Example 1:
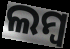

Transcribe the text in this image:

ଲମ୍ବ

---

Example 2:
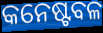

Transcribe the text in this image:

କନେଷ୍ଟବଳ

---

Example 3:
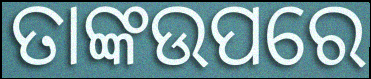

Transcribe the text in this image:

ତାଙ୍କଉପରେ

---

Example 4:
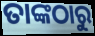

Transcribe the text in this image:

ତାଙ୍କଠାରୁ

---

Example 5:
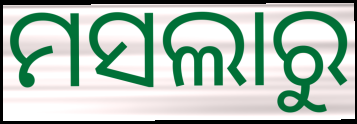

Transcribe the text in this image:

ମସଲାରୁ